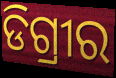
ଡିଗ୍ରୀର